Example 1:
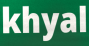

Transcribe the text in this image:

khyal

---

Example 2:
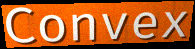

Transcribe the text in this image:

Convex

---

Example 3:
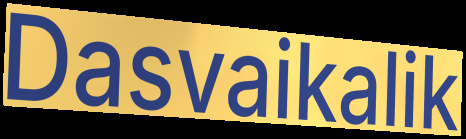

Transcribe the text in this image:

Dasvaikalik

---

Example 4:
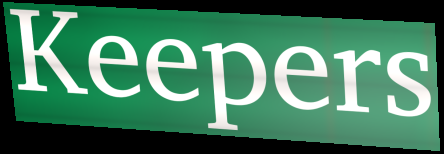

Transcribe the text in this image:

Keepers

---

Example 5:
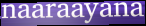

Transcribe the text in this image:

naaraayana